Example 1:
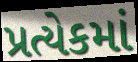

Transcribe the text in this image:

પ્રત્યેકમાં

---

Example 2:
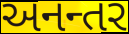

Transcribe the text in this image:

અનન્તર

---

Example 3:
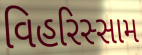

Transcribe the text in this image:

વિહરિસ્સામ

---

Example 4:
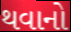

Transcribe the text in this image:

થવાનો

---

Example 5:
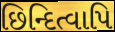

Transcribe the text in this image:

છિન્દિત્વાપિ